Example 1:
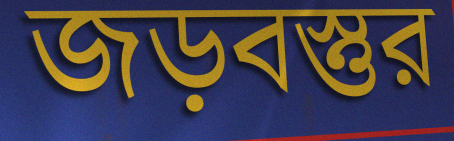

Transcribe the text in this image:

জড়বস্তুর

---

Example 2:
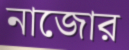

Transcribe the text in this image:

নাজোর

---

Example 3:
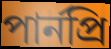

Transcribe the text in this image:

পার্নপ্রি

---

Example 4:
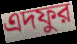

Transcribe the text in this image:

এদফুর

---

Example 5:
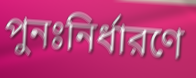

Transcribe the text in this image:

পুনঃনির্ধারণে